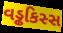
વડ્ઢકિસ્સ